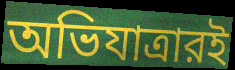
অভিযাত্রারই